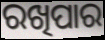
ରଖିପାର